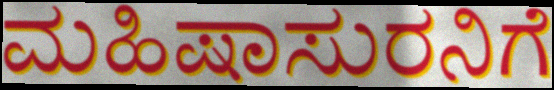
ಮಹಿಷಾಸುರನಿಗೆ